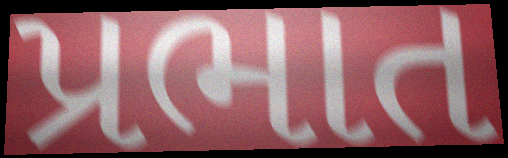
પ્રભાત